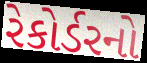
રેકોર્ડરનો